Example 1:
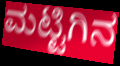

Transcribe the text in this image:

ಮಟ್ಟಿಗಿನ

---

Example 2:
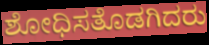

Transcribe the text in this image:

ಶೋಧಿಸತೊಡಗಿದರು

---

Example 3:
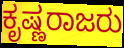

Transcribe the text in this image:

ಕೃಷ್ಣರಾಜರು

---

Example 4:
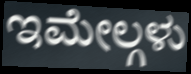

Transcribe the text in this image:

ಇಮೇಲ್ಗಳು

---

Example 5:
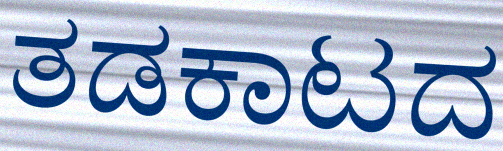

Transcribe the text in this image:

ತಡಕಾಟದ